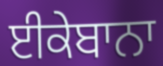
ਈਕੇਬਾਨਾ